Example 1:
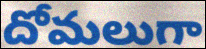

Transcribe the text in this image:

దోమలుగా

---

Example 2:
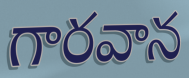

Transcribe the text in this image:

గారవాన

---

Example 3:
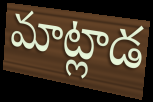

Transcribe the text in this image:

మాట్లాడ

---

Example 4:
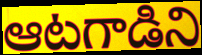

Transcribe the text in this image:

ఆటగాడిని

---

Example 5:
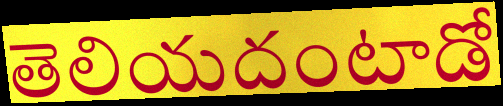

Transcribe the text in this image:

తెలియదంటాడో